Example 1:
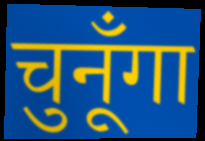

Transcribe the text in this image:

चुनूँगा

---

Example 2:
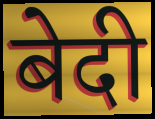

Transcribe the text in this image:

बेदी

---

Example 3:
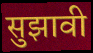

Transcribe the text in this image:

सुझावी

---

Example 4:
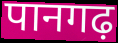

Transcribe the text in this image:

पानगढ़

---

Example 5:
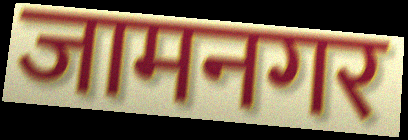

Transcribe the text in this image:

जामनगर